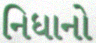
નિધાનો